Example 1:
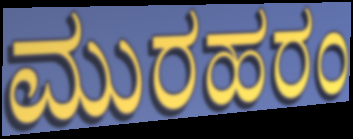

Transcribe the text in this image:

ಮುರಹರಂ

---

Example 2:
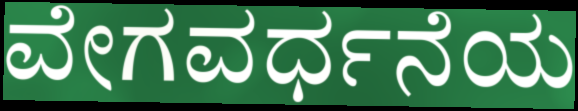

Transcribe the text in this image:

ವೇಗವರ್ಧನೆಯ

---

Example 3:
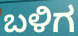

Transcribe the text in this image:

ಬಳಿಗ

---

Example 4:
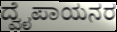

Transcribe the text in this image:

ದ್ವೈಪಾಯನರ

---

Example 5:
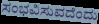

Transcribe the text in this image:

ಸಂಭವಿಸುವದೆಂದು